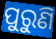
ପୁରୁଣି